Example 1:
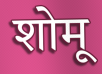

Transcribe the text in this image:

शोमू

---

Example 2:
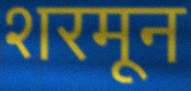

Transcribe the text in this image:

शरमून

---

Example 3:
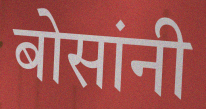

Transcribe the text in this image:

बोसांनी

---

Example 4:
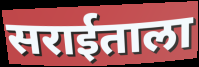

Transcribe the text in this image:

सराईताला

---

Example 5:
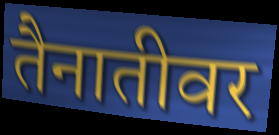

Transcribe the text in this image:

तैनातीवर